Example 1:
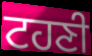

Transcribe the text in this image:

ਟਹਣੀ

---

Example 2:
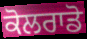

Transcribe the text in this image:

ਕੋਲਰਾਡੋ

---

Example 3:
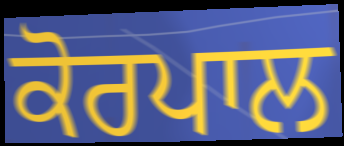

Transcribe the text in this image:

ਕੋਰਪਾਲ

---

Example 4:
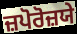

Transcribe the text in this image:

ਜ਼ਪੋਰੋਜ਼ਯੇ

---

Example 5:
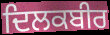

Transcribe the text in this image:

ਦਿਲਕਬੀਰ